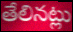
తేలినట్లు